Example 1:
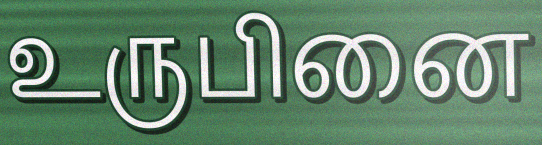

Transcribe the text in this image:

உருபினை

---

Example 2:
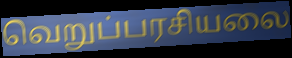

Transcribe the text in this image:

வெறுப்பரசியலை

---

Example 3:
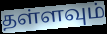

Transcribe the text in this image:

தள்ளவும்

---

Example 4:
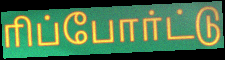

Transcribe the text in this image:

ரிப்போர்ட்டு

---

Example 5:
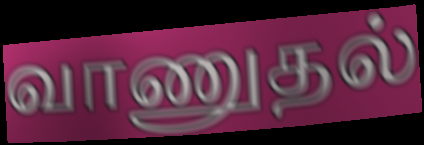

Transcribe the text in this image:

வாணுதல்